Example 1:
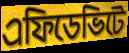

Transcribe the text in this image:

এফিডেভিটে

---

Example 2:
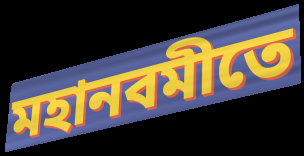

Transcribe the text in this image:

মহানবমীতে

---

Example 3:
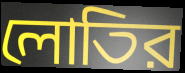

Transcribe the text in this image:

লোতির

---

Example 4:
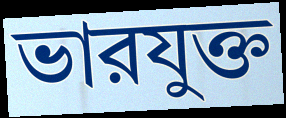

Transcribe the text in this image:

ভারযুক্ত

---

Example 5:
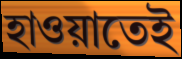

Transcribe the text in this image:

হাওয়াতেই